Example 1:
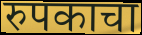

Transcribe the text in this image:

रुपकाचा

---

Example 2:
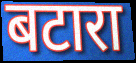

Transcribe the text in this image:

बटारा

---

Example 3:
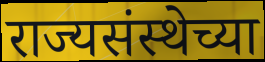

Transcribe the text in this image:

राज्यसंस्थेच्या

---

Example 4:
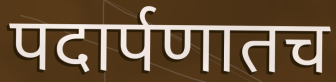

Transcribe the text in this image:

पदार्पणातच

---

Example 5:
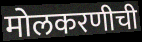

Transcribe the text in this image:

मोलकरणीची